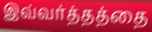
இவ்வர்த்தத்தை